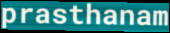
prasthanam